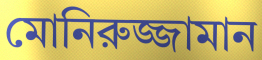
মোনিরুজ্জামান